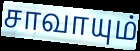
சாவாயும்